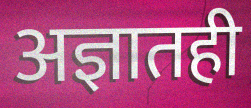
अज्ञातही